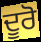
ਦੂਰੋ